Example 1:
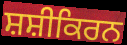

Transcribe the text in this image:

ਸ਼ਸ਼ੀਕਿਰਨ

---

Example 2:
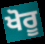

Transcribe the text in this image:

ਖੋਰੂ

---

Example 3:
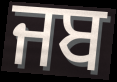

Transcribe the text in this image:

ਜਬ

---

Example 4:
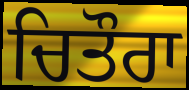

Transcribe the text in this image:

ਚਿਤੌਰਾ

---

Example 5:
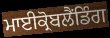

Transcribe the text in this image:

ਮਾਈਕ੍ਰੋਬਲੈਂਡਿੰਗ